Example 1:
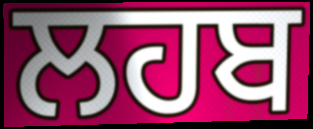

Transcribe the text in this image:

ਲਹਬ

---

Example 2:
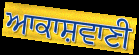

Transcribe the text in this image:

ਆਕਾਸ਼ਵਾਣੀ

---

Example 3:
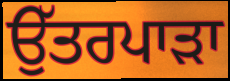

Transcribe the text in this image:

ਉੱਤਰਪਾੜਾ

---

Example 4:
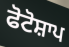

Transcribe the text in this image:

ਫੋਟੋਸ਼ਾਪ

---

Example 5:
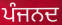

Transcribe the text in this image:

ਪੰਜਨਦ